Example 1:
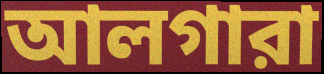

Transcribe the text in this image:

আলগারা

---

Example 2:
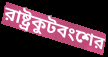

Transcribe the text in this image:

রাষ্ট্রকুটবংশের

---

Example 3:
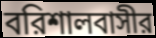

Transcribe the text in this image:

বরিশালবাসীর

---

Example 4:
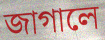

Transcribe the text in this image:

জাগালে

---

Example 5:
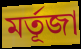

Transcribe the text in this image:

মর্তূজা